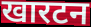
खारटन